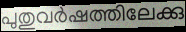
പുതുവർഷത്തിലേക്കു